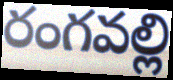
రంగవల్లి